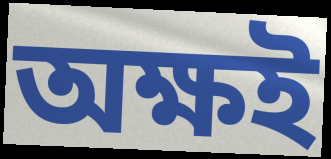
অক্ষই